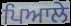
ਪਿਆਲੇ